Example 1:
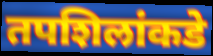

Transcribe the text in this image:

तपशिलांकडे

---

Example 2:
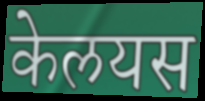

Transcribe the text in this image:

केलयस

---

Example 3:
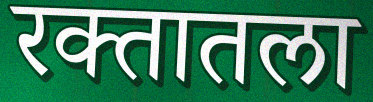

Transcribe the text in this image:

रक्तातला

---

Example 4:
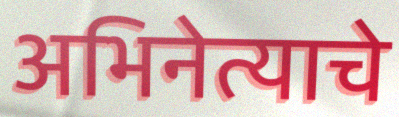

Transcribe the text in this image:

अभिनेत्याचे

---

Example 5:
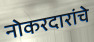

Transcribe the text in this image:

नोकरदारांचे